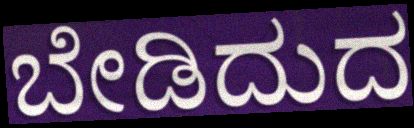
ಬೇಡಿದುದ